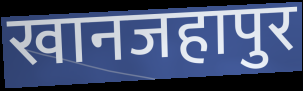
खानजहापुर